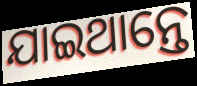
ଯାଇଥାନ୍ତେ